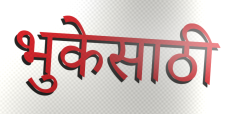
भुकेसाठी